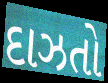
દાઝતો